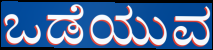
ಒಡೆಯುವ